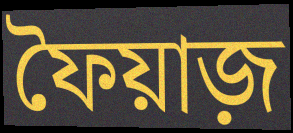
ফৈয়াজ়